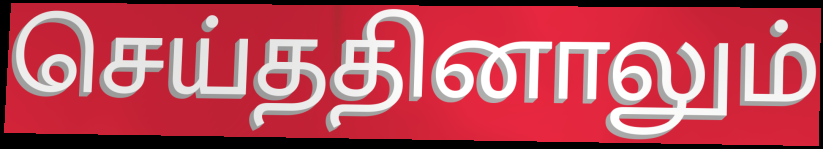
செய்ததினாலும்